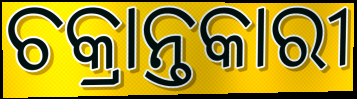
ଚକ୍ରାନ୍ତକାରୀ